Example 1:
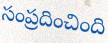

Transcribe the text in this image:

సంప్రదించింది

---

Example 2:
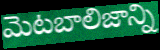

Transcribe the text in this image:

మెటబాలిజాన్ని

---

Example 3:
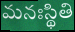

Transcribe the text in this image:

మనఃస్థితి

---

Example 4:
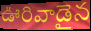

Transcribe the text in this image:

ఊరివాడైన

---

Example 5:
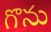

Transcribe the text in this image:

గొను